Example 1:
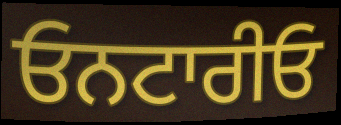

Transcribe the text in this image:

ਓਨਟਾਰੀਓ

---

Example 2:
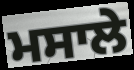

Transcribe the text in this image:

ਮਸਾਲੇ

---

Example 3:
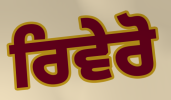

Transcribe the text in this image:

ਰਿਵੇਰੋ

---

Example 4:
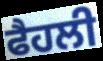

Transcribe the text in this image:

ਫੈਹਲੀ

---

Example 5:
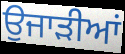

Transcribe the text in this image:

ਉਜਾੜੀਆਂ